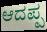
ಆದಪ್ಪ